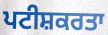
ਪਟੀਸ਼ਕਰਤਾ